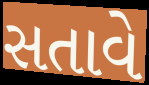
સતાવે